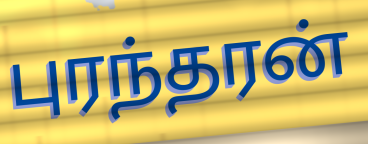
புரந்தரன்